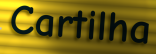
Cartilha